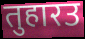
तुहारउ